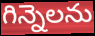
గిన్నెలను